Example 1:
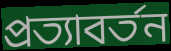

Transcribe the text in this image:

প্ৰত্যাবৰ্তন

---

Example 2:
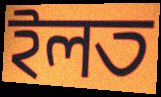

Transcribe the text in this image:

ইলত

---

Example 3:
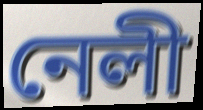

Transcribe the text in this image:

নেলী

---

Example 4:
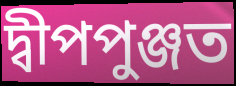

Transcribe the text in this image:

দ্বীপপুঞ্জত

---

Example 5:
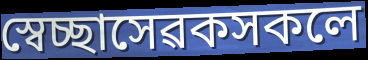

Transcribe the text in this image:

স্বেচ্ছাসেৱকসকলে